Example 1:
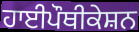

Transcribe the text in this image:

ਹਾਈਪੌਥੀਕੇਸ਼ਨ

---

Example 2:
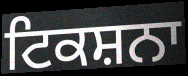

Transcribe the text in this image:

ਟਿਕਸ਼ਨਾ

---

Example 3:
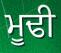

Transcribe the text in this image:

ਮੂਢੀ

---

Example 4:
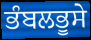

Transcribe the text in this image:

ਭੰਬਲਭੂਸੇ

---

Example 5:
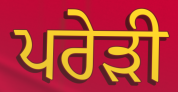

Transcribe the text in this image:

ਪਰੇੜੀ